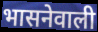
भासनेवाली